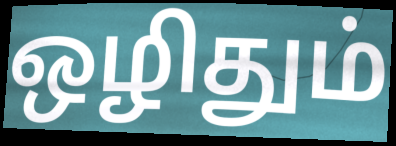
ஒழிதும்